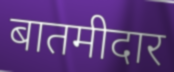
बातमीदार